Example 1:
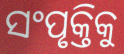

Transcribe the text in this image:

ସଂପୃକ୍ତିକୁ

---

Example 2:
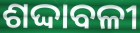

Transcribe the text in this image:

ଶଦ୍ଦାବଳୀ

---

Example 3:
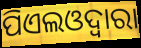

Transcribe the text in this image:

ପିଏଲଓଦ୍ୱାରା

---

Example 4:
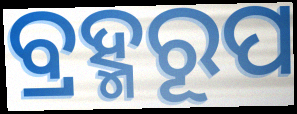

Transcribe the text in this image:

ବ୍ରହ୍ମରୂପ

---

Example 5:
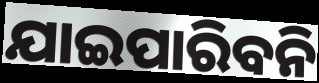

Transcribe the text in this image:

ଯାଇପାରିବନି